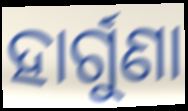
ହାର୍ଗୁଣା